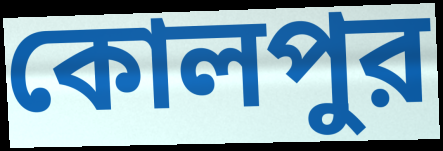
কোলপুর